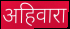
अहिवारा